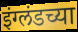
इंग्लंडच्या